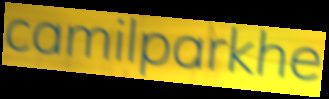
camilparkhe